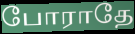
போராதே